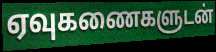
ஏவுகணைகளுடன்